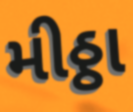
મીઠ્ઠા